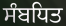
ਸੰਬਧਿਤ